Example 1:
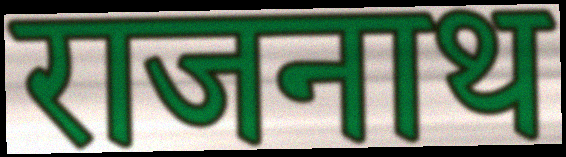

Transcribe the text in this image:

राजनाथ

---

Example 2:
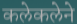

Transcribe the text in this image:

कलेकलेने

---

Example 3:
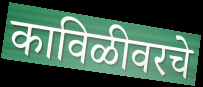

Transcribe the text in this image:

काविळीवरचे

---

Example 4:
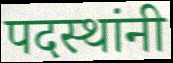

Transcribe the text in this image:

पदस्थांनी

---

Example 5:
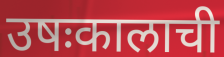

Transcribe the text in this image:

उषःकालाची